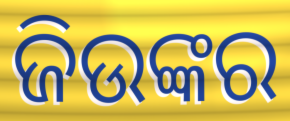
ଜିଉଙ୍କର